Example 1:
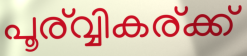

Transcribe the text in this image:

പൂര്വ്വികര്ക്ക്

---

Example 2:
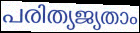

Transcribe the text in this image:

പരിത്യജ്യതാം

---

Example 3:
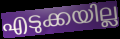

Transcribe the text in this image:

എടുക്കയില്ല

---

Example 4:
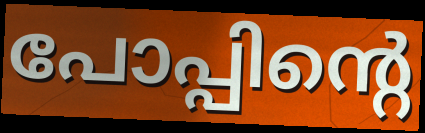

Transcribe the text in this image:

പോപ്പിന്റെ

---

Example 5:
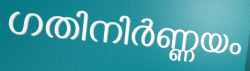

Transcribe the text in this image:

ഗതിനിർണ്ണയം